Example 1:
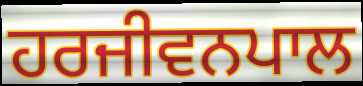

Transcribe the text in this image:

ਹਰਜੀਵਨਪਾਲ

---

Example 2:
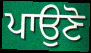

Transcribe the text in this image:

ਪਾਉਣੋ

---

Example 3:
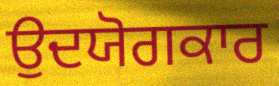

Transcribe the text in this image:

ਉਦਯੋਗਕਾਰ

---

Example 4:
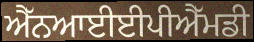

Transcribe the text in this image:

ਐੱਨਆਈਈਪੀਐੱਮਡੀ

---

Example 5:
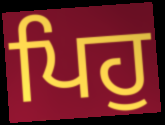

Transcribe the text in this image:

ਪਿਹੁ